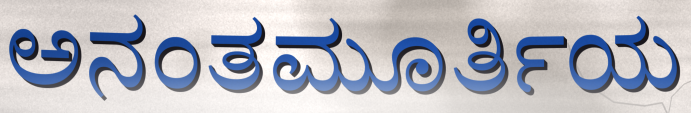
ಅನಂತಮೂರ್ತಿಯ